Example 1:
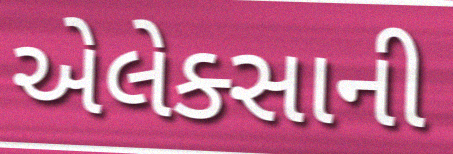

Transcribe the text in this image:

એલેક્સાની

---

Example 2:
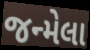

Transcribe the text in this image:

જન્મેલા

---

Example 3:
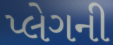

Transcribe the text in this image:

પ્લેગની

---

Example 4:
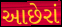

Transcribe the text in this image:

આછેરાં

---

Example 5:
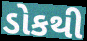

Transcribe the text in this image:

ડોકથી